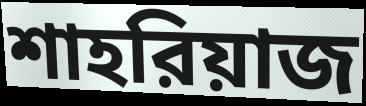
শাহরিয়াজ